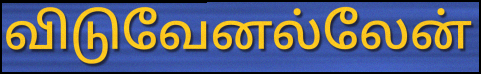
விடுவேனல்லேன்